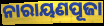
ନାରାୟଣପୂଜା